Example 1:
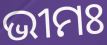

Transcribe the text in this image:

ଭୀମଃ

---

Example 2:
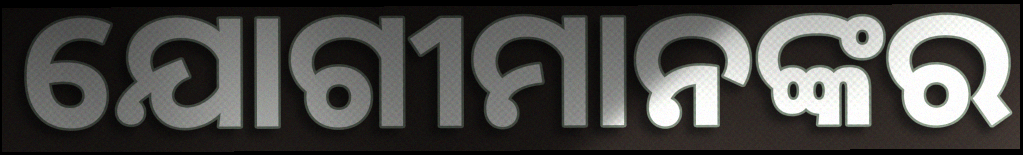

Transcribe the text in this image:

ଯୋଗୀମାନଙ୍କର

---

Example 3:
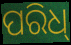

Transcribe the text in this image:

ପରିଧ୍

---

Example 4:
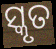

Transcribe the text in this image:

ସ୍କୃତ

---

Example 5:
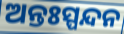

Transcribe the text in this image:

ଅନ୍ତଃସ୍ପନ୍ଦନ